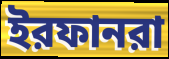
ইরফানরা